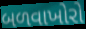
બળવાખોરો